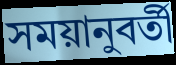
সময়ানুবর্তী